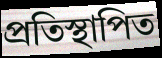
প্রতিস্থাপিত